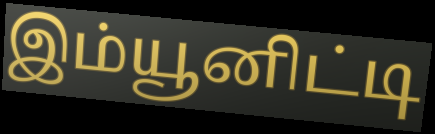
இம்யூனிட்டி